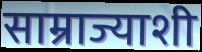
साम्राज्याशी